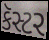
કૅસ્ટર